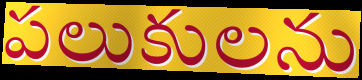
పలుకులను